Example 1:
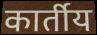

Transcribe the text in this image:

कार्तीय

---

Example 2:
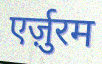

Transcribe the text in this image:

एर्ज़ुरम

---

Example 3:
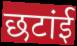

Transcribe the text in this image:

छटांई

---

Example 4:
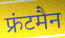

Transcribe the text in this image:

फ्रंटमैन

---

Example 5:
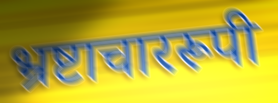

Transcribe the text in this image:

भ्रष्टाचाररूपी